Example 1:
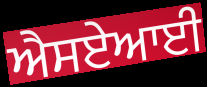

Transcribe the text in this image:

ਐਸਏਆਈ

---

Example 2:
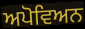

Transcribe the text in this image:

ਅਪੋਵਿਅਨ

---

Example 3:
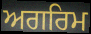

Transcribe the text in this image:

ਅਗਰਿਮ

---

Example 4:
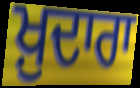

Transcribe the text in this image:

ਖ਼ੁਦਾਰਾ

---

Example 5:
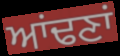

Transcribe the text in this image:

ਆਂਢਣਾਂ